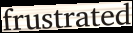
frustrated